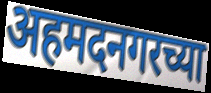
अहमदनगरच्या